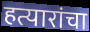
हत्यारांचा